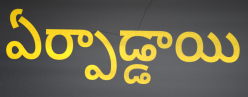
ఏర్పాడ్డాయి